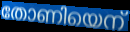
തോണിയെന്